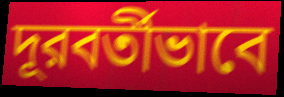
দূরবর্তীভাবে